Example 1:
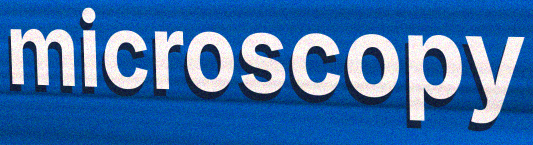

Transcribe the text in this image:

microscopy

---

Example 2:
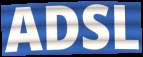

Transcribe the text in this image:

ADSL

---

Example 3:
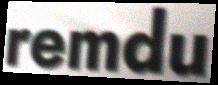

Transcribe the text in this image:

remdu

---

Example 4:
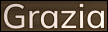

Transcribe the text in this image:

Grazia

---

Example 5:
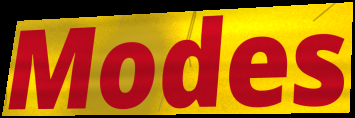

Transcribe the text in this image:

Modes